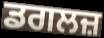
ਡਗਲਜ਼